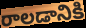
రాలడానికి